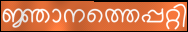
ജ്ഞാനത്തെപ്പറ്റി